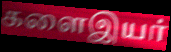
களைஇயர்